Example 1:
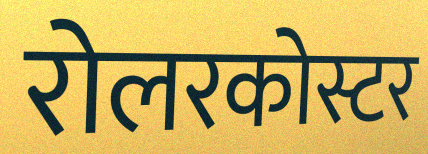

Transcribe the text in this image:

रोलरकोस्टर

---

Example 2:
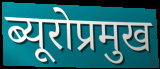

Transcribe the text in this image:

ब्यूरोप्रमुख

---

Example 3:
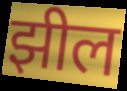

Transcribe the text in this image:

झील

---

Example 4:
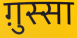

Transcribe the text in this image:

ग़ुस्सा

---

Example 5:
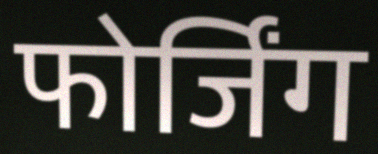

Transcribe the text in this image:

फोर्जिंग